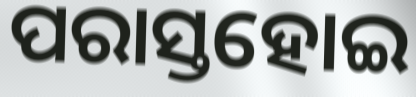
ପରାସ୍ତହୋଇ